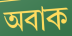
অবাক